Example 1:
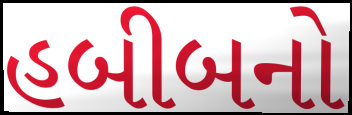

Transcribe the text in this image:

હબીબનો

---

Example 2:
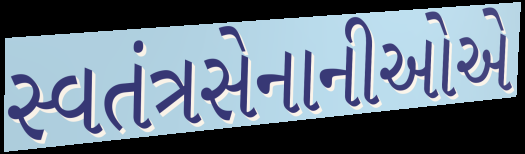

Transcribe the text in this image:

સ્વતંત્રસેનાનીઓએ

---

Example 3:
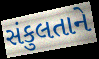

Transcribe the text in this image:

સંકુલતાને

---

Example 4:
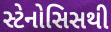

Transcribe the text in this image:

સ્ટેનોસિસથી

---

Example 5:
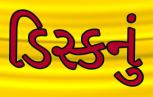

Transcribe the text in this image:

ડિસ્કનું